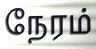
நேரம்